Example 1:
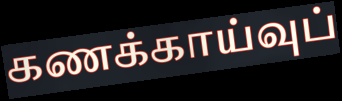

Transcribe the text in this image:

கணக்காய்வுப்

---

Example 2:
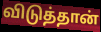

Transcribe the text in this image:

விடுத்தான்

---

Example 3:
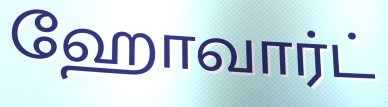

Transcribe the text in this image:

ஹோவார்ட்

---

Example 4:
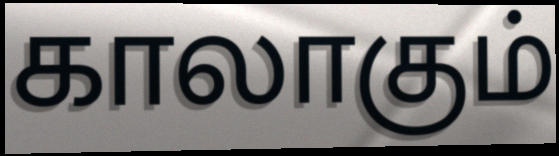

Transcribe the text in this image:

காலாகும்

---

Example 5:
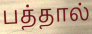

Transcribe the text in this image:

பத்தால்